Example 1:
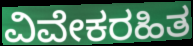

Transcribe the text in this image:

ವಿವೇಕರಹಿತ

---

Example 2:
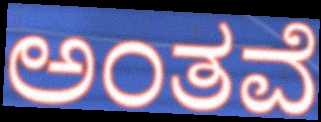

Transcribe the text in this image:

ಅಂತವೆ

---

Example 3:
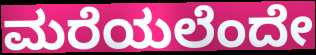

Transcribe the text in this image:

ಮರೆಯಲೆಂದೇ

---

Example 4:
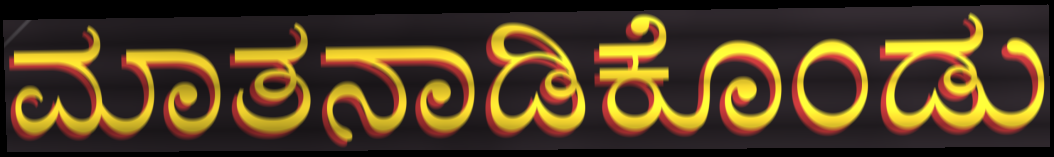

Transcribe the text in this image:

ಮಾತನಾಡಿಕೊಂಡು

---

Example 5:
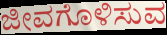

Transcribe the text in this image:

ಜೀವಗೊಳಿಸುವ